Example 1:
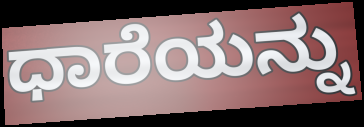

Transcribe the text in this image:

ಧಾರೆಯನ್ನು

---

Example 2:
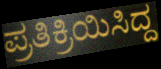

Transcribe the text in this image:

ಪ್ರತಿಕ್ರಿಯಿಸಿದ್ದ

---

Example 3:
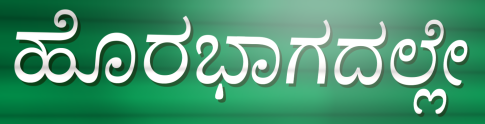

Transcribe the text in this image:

ಹೊರಭಾಗದಲ್ಲೇ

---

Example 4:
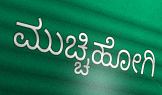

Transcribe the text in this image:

ಮುಚ್ಚಿಹೋಗಿ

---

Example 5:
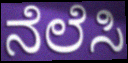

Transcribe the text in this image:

ನೆಲೆಸಿ